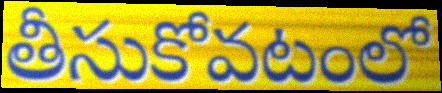
తీసుకోవటంలో